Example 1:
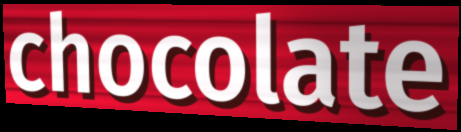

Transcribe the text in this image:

chocolate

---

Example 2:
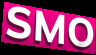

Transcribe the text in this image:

SMO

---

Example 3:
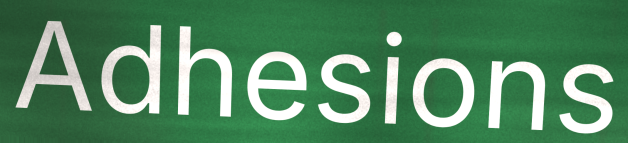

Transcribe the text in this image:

Adhesions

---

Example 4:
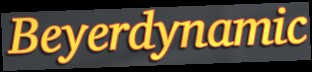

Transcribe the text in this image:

Beyerdynamic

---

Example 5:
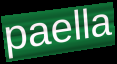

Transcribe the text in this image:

paella